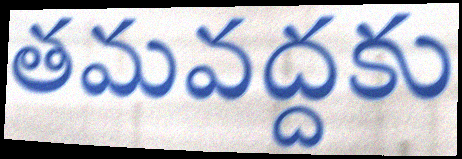
తమవద్దకు